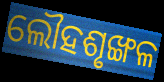
ଲୌହଶୃଙ୍ଖଳ